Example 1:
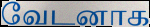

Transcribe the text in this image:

வேடனாக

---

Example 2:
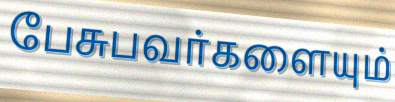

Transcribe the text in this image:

பேசுபவர்களையும்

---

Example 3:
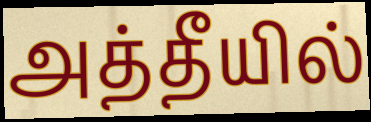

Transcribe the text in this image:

அத்தீயில்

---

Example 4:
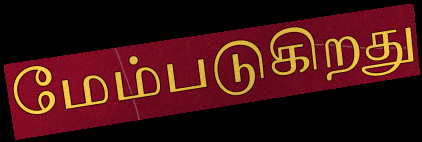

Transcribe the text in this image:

மேம்படுகிறது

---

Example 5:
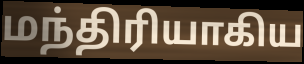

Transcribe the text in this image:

மந்திரியாகிய